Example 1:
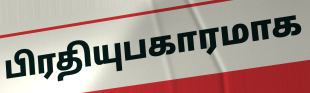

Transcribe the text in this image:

பிரதியுபகாரமாக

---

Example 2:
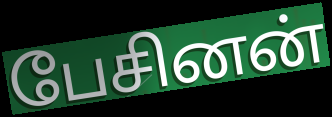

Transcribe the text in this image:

பேசினன்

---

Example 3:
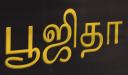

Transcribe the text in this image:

பூஜிதா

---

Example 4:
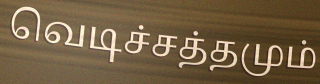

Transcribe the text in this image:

வெடிச்சத்தமும்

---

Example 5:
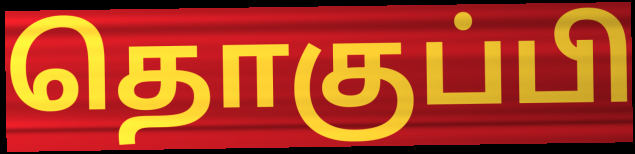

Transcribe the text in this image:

தொகுப்பி